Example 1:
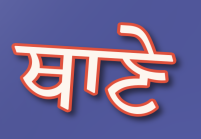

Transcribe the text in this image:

ਥਾਣੇ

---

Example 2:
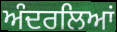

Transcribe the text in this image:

ਅੰਦਰਲਿਆਂ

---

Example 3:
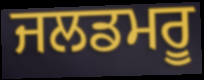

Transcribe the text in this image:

ਜਲਡਮਰੂ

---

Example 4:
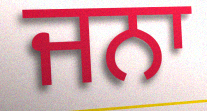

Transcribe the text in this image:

ਜਨਾ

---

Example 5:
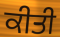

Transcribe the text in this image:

ਕੀਤੀ